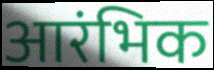
आरंभिक